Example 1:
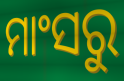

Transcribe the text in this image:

ମାଂସରୁ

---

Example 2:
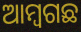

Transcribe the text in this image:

ଆମ୍ବଗଛ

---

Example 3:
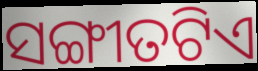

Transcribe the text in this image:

ସଙ୍ଗୀତଟିଏ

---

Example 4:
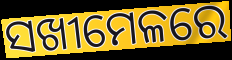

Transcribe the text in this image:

ସଖୀମେଳରେ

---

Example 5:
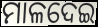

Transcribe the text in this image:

ମାଳଦେଇ